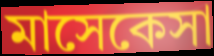
মাসেকেসা